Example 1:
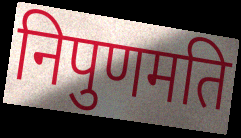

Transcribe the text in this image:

निपुणमति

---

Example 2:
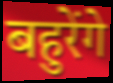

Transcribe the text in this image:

बहुरेंगे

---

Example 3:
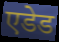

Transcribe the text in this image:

एडेड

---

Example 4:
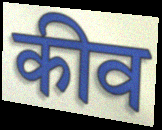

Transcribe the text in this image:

कीव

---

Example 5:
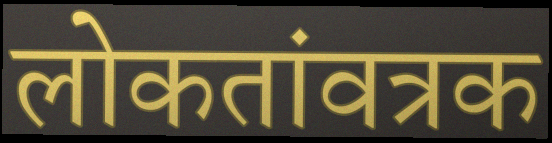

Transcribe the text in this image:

लोकतांवत्रक